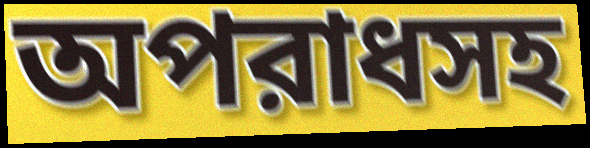
অপরাধসহ